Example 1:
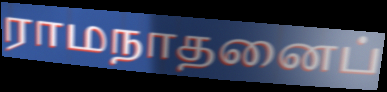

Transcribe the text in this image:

ராமநாதனைப்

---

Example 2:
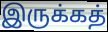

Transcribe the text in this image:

இருக்கத்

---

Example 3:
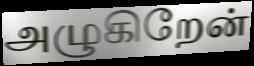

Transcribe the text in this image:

அழுகிறேன்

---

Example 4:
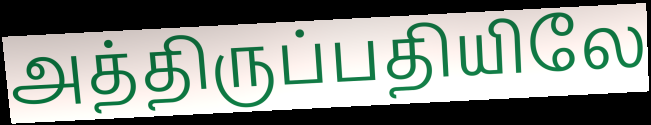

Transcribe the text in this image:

அத்திருப்பதியிலே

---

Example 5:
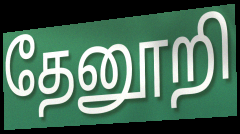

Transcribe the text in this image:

தேனூறி